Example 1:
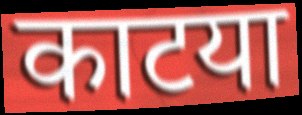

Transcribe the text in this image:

काटया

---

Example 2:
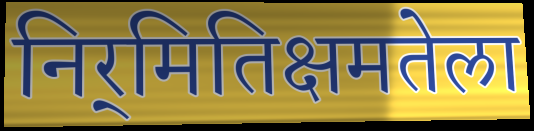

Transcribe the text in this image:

निर्मितिक्षमतेला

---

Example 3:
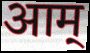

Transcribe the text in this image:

आम्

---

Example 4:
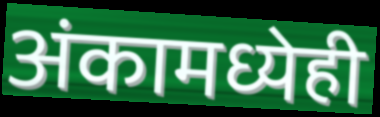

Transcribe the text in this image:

अंकामध्येही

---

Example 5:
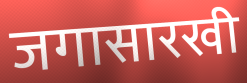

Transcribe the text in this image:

जगासारखी